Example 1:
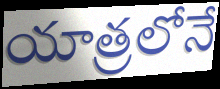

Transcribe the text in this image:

యాత్రలోనే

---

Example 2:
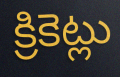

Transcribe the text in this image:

క్రికెట్లు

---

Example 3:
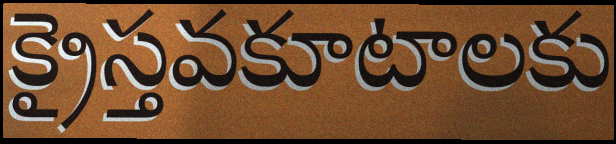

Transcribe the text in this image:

క్రైస్తవకూటాలకు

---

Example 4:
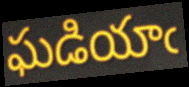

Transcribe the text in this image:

ఘడియాఁ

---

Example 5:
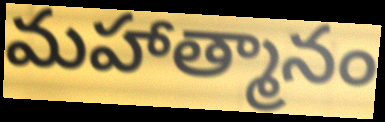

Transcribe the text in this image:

మహాత్మానం